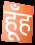
हूँह